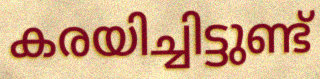
കരയിച്ചിട്ടുണ്ട്